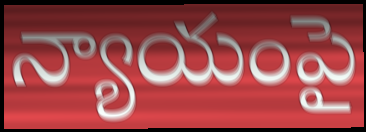
న్యాయంపై